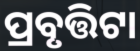
ପ୍ରବୃତ୍ତିଟା